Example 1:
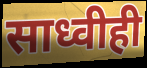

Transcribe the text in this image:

साध्वीही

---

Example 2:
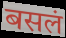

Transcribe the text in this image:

बसलं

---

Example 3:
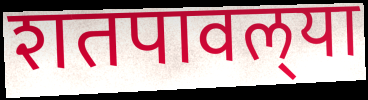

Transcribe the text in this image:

शतपावल्या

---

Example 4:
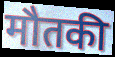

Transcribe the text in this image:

मौतकी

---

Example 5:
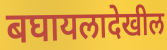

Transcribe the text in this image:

बघायलादेखील